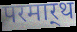
परमार्थ